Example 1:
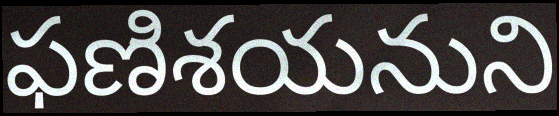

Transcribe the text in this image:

ఫణిశయనుని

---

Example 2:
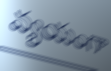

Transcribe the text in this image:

వ్యయంగా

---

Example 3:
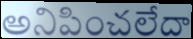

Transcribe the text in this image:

అనిపించలేదా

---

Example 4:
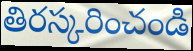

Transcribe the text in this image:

తిరస్కరించండి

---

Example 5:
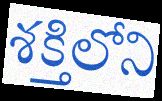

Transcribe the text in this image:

శక్తిలోని